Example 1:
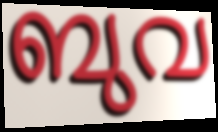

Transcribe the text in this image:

ബുവ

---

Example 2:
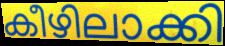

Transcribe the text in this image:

കീഴിലാക്കി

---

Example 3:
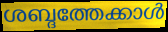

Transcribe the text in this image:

ശബ്ദത്തേക്കാൾ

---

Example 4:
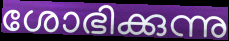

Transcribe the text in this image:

ശോഭിക്കുന്നു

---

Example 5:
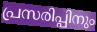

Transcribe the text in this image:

പ്രസരിപ്പിനും